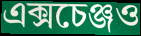
এক্সচেঞ্জও